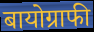
बायोग्राफी